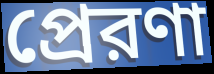
প্রেরণা